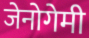
जेनोगेमी